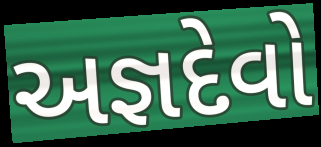
અજ્ઞદેવો